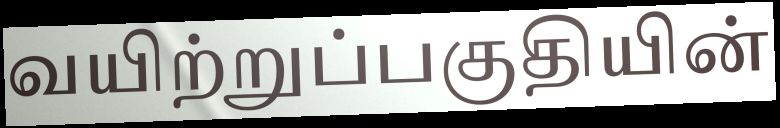
வயிற்றுப்பகுதியின்